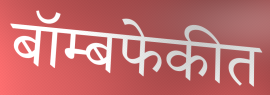
बॉम्बफेकीत